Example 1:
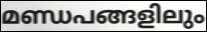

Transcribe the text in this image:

മണ്ഡപങ്ങളിലും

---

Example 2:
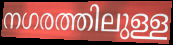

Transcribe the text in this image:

നഗരത്തിലുള്ള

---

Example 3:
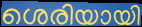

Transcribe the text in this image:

ശെരിയായി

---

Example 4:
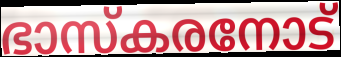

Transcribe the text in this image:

ഭാസ്കരനോട്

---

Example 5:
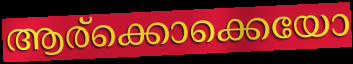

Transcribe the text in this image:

ആര്ക്കൊക്കെയോ